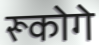
रूकोगे